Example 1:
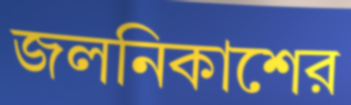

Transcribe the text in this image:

জলনিকাশের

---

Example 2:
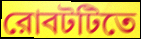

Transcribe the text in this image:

রোবটটিতে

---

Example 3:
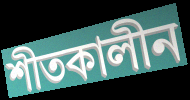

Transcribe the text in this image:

শীতকালীন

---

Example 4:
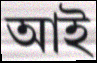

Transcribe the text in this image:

আই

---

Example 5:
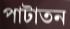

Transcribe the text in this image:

পাটাতন